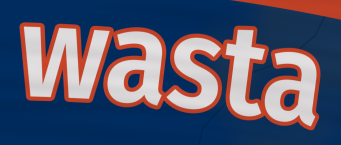
wasta